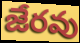
జేరవు